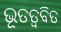
ଭୂତତ୍ଵବିତ